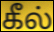
கீல்